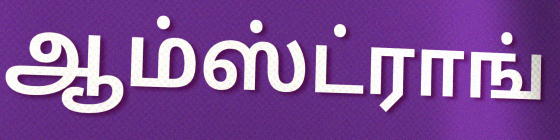
ஆம்ஸ்ட்ராங்